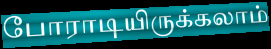
போராடியிருக்கலாம்